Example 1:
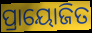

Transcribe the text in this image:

ପ୍ରାୟୋଜିତ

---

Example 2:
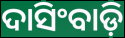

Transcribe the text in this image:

ଦାସିଂବାଡ଼ି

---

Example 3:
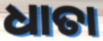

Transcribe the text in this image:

ଧାତା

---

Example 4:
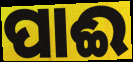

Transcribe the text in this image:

ପାଈ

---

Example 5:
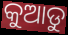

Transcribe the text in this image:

କୁଆଡୁ